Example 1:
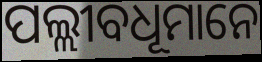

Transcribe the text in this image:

ପଲ୍ଲୀବଧୂମାନେ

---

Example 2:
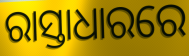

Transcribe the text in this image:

ରାସ୍ତାଧାରରେ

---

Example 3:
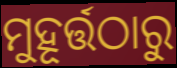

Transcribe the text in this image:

ମୁହୂର୍ତ୍ତଠାରୁ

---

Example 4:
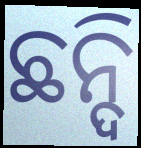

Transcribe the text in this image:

ଛନ୍ଦି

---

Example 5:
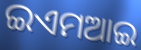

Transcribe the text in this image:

ଇଏମଆଇ